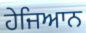
ਹੇਜਿਆਨ